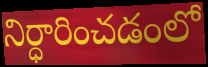
నిర్ధారించడంలో